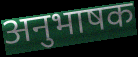
अनुभाषक